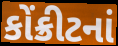
કોંક્રીટનાં